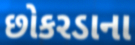
છોકરડાના